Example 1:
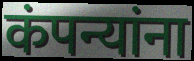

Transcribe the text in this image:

कंपन्यांना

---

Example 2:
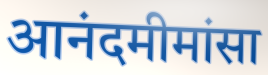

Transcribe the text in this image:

आनंदमीमांसा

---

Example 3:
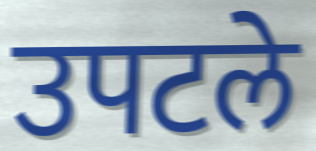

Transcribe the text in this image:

उपटले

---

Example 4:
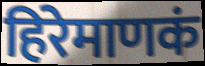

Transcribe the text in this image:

हिरेमाणकं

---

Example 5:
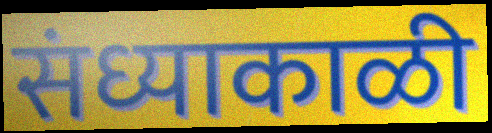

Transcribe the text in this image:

संध्याकाळी